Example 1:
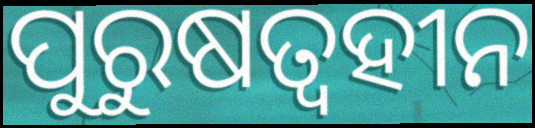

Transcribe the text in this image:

ପୁରୁଷତ୍ୱହୀନ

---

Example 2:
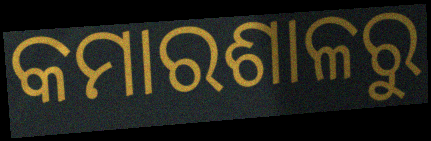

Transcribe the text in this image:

କମାରଶାଳରୁ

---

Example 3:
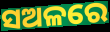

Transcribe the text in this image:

ସଅଳରେ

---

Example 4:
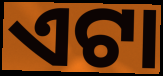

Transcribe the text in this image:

ଏଟା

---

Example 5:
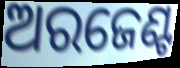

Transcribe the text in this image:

ଅରଜେଣ୍ଟ